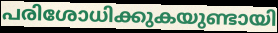
പരിശോധിക്കുകയുണ്ടായി